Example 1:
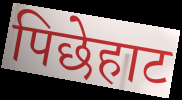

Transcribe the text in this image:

पिछेहाट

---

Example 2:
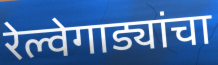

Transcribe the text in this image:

रेल्वेगाड्यांचा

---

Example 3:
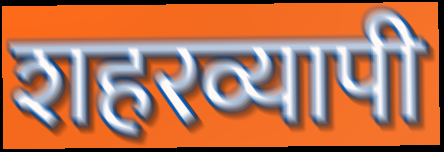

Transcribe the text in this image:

शहरव्यापी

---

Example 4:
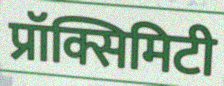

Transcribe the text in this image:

प्रॉक्सिमिटी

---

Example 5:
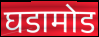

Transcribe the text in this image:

घडामोड